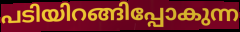
പടിയിറങ്ങിപ്പോകുന്ന